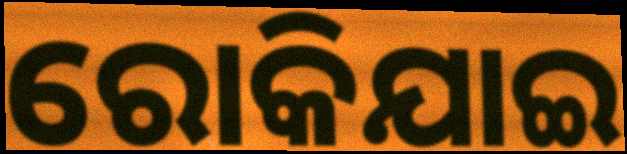
ରୋକିଯାଇ